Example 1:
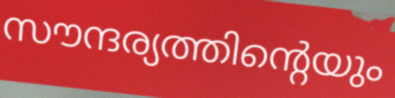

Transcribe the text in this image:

സൗന്ദര്യത്തിന്റെയും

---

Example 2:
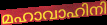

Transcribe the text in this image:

മഹാവാഹിനി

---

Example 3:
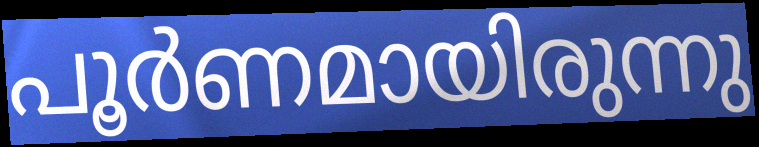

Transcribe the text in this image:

പൂർണമായിരുന്നു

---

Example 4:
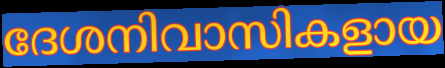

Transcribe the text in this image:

ദേശനിവാസികളായ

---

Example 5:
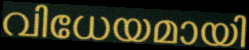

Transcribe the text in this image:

വിധേയമായി